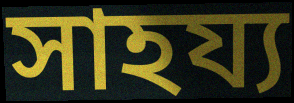
সাহয্য